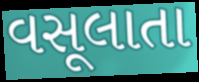
વસૂલાતા